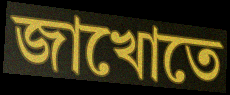
জাখোতে